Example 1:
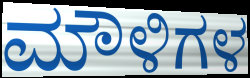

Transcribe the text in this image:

ಮೌಳಿಗಳ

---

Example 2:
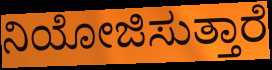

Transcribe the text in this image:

ನಿಯೋಜಿಸುತ್ತಾರೆ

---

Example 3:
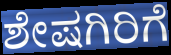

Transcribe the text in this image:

ಶೇಷಗಿರಿಗೆ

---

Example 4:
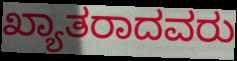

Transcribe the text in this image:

ಖ್ಯಾತರಾದವರು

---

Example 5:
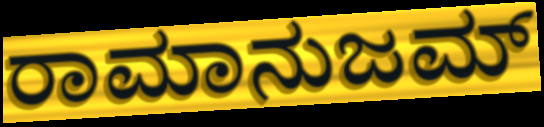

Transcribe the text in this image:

ರಾಮಾನುಜಮ್